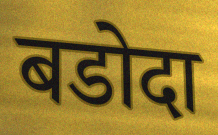
बडोदा